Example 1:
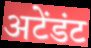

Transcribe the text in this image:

अटेंडंट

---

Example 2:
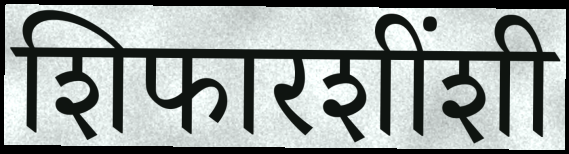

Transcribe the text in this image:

शिफारशींशी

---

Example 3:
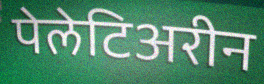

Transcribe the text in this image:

पेलेटिअरीन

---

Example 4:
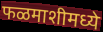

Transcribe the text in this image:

फळमाशीमध्ये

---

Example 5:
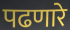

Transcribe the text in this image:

पढणारे